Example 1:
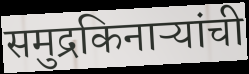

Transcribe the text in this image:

समुद्रकिनाऱ्यांची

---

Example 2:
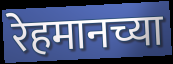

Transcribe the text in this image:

रेहमानच्या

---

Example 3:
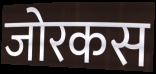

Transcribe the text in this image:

जोरकस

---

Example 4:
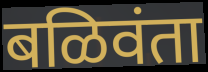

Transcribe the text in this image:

बळिवंता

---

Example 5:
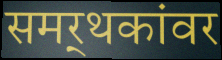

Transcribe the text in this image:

समर्थकांवर